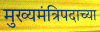
मुख्यमंत्रिपदाच्या